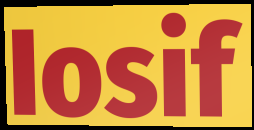
Iosif